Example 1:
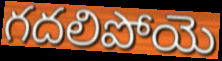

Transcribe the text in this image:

గదలిపోయె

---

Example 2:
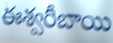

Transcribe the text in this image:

ఈశ్వరీబాయి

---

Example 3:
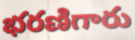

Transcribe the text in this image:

భరణిగారు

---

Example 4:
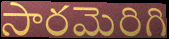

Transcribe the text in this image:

సారమెరిగి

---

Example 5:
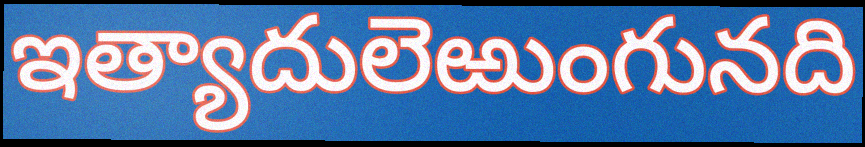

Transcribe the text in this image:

ఇత్యాదులెఱుంగునది